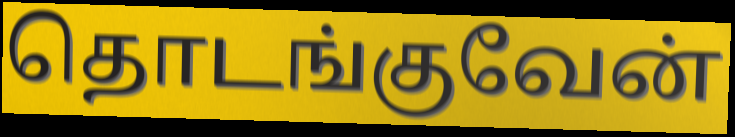
தொடங்குவேன்